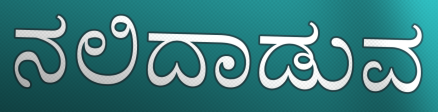
ನಲಿದಾಡುವ